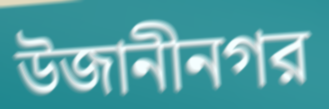
উজানীনগর